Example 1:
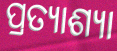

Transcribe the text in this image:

ପ୍ରତ୍ୟାଶ୍ୟା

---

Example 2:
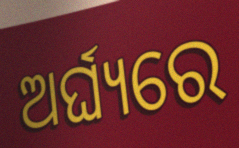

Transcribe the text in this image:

ଅର୍ଘ୍ୟରେ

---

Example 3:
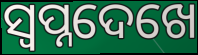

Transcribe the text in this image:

ସ୍ୱପ୍ନଦେଖେ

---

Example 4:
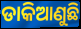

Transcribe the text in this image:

ଡାକିଆଣୁଛି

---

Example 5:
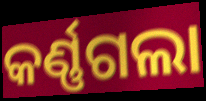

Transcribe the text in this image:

କର୍ଣ୍ଣଗଲା